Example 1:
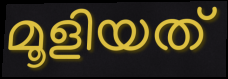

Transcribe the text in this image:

മൂളിയത്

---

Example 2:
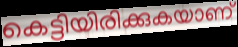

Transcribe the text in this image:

കെട്ടിയിരിക്കുകയാണ്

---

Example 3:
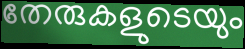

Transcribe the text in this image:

തേരുകളുടെയും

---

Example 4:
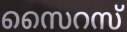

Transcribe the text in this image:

സൈറസ്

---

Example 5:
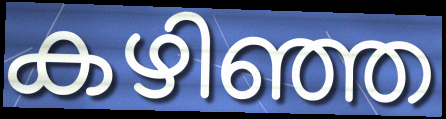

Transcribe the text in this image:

കഴിഞ്ഞ